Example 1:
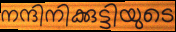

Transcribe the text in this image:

നന്ദിനിക്കുട്ടിയുടെ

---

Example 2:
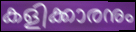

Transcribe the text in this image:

കളിക്കാരനും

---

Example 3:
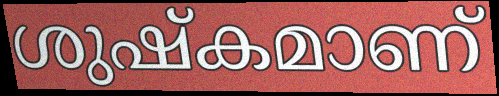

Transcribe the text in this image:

ശുഷ്കമാണ്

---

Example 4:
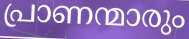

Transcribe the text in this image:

പ്രാണന്മാരും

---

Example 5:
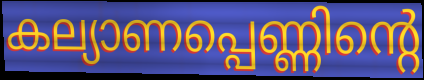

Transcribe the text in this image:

കല്യാണപ്പെണ്ണിന്റെ